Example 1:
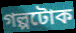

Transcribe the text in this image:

গল্পটোক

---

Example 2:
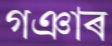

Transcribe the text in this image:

গঞাৰ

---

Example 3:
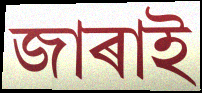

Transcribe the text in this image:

জাৰাই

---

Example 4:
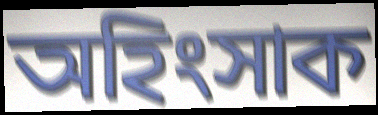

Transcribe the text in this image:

অহিংসাক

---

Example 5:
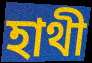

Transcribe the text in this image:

হাথী